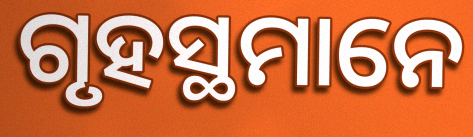
ଗୃହସ୍ଥମାନେ